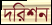
দরিশন